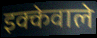
इक्केवाले